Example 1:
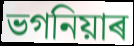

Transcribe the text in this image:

ভগনিয়াৰ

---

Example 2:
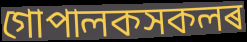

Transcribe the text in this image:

গোপালকসকলৰ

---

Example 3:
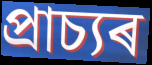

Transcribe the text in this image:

প্ৰাচ্যৰ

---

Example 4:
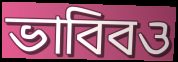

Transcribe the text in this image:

ভাবিবও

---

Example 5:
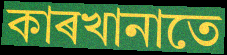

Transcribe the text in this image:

কাৰখানাতে